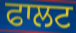
ਫਾਲਟ